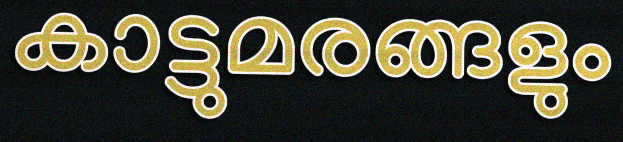
കാട്ടുമരങ്ങളും